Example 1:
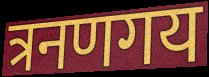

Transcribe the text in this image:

त्रनणगय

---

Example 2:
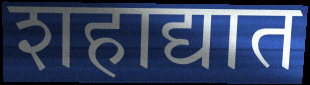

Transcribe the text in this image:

शहाद्यात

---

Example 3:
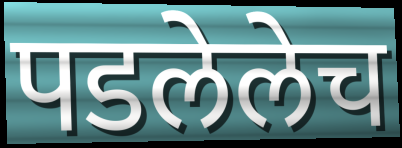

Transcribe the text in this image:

पडलेलेच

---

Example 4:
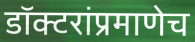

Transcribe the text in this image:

डॉक्टरांप्रमाणेच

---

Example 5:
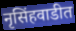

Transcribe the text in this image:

नृसिंहवाडीत